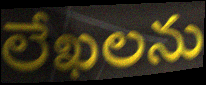
లేఖలను